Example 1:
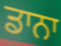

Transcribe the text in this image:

ਡਾਨਾ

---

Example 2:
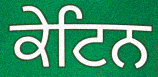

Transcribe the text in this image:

ਕੇਟਿਨ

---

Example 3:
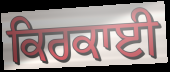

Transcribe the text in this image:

ਕਿਰਕਾਈ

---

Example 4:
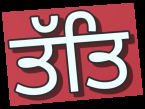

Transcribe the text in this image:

ਤੱਤਿ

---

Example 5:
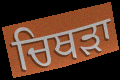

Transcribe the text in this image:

ਚਿਥੜਾ